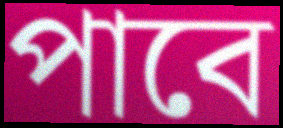
পাবে